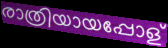
രാത്രിയായപ്പോള്